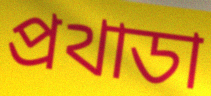
প্রথাডা